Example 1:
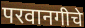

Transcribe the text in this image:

परवानगीचे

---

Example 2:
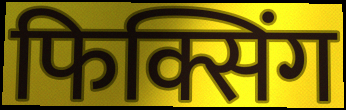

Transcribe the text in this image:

फिक्सिंग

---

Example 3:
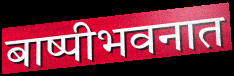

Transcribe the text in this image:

बाष्पीभवनात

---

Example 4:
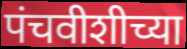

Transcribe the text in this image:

पंचवीशीच्या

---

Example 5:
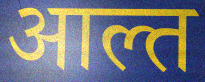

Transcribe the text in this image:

आल्त